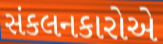
સંકલનકારોએ